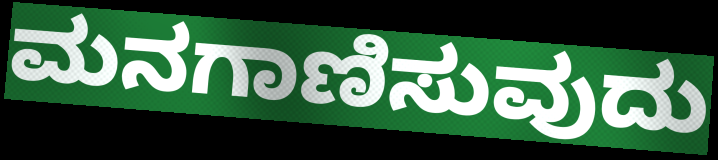
ಮನಗಾಣಿಸುವುದು